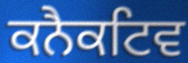
ਕਨੈਕਟਿਵ